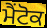
ਮੈਂਟੋਕ